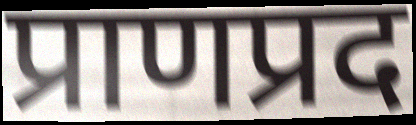
प्राणप्रद